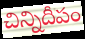
చిన్నిదీపం